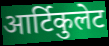
आर्टिकुलेट